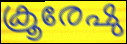
ക്രൂരേഷു